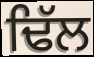
ਢਿੱਲ